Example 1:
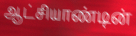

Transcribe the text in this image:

ஆட்சியாண்டின்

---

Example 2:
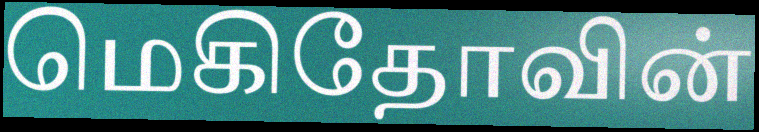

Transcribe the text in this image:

மெகிதோவின்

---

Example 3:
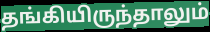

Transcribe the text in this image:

தங்கியிருந்தாலும்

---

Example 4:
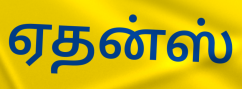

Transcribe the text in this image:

ஏதன்ஸ்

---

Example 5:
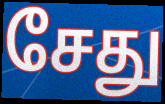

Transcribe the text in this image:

சேது